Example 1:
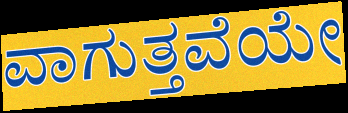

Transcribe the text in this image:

ವಾಗುತ್ತವೆಯೇ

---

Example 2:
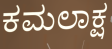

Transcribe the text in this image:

ಕಮಲಾಕ್ಷ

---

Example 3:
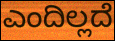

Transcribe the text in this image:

ಎಂದಿಲ್ಲದೆ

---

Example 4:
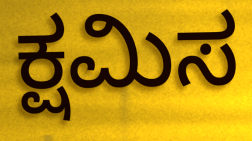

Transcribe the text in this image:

ಕ್ಷಮಿಸ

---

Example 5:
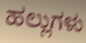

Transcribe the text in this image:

ಹಲ್ಲುಗಳು